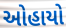
ઓહાયો